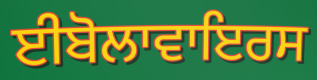
ਈਬੋਲਾਵਾਇਰਸ